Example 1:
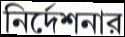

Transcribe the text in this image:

নির্দেশনার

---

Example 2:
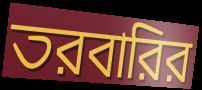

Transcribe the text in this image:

তরবারির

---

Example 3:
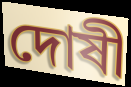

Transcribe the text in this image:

দোষী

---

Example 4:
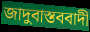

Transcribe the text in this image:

জাদুবাস্তববাদী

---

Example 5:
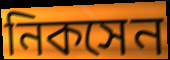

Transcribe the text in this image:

নিকসেন